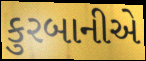
કુરબાનીએ